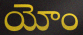
యోం